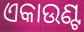
ଏକାଉଣ୍ଟ